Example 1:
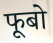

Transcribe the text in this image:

फूबो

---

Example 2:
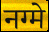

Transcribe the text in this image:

नग्मे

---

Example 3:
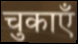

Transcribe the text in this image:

चुकाएँ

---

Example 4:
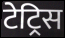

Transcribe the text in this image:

टेट्रिस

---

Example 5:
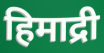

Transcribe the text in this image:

हिमाद्री